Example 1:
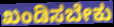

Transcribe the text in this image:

ಖಂಡಿಸಬೇಕು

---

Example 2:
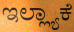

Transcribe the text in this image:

ಇಲ್ಲ್ಯಾಕೆ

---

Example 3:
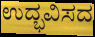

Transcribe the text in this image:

ಉದ್ಭವಿಸದ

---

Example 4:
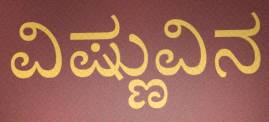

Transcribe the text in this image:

ವಿಷ್ಣುವಿನ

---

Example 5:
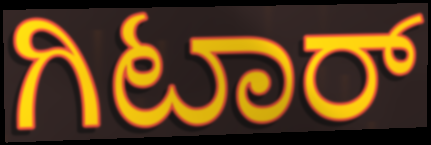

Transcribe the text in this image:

ಗಿಟಾರ್